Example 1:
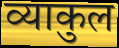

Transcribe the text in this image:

व्याकुल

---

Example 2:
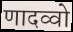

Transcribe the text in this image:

णादव्वो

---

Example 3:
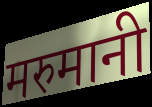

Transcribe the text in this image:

मरुमानी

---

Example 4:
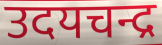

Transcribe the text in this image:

उदयचन्द्र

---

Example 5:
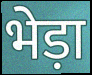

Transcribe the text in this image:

भेड़ा